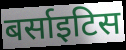
बर्साइटिस